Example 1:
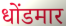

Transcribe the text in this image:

धोंडमार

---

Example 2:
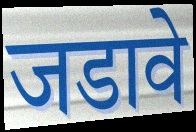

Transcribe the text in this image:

जडावे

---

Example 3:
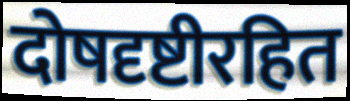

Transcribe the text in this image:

दोषदृष्टीरहित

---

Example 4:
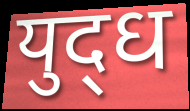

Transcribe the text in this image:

युद्ध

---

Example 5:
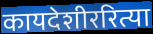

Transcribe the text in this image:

कायदेशीररित्या